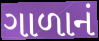
ગાળાનં